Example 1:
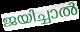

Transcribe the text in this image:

ജയിച്ചാൽ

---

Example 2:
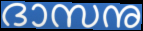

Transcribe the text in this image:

ദാസനു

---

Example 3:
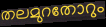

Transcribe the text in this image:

തലമുറതോറും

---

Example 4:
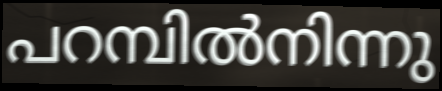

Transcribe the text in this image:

പറമ്പിൽനിന്നു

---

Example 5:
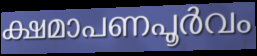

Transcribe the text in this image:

ക്ഷമാപണപൂർവം